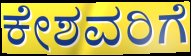
ಕೇಶವರಿಗೆ